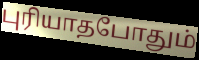
புரியாதபோதும்